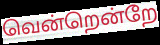
வென்றென்றே